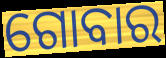
ଗୋବାର